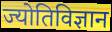
ज्योतिविज्ञान